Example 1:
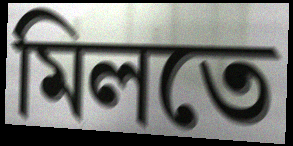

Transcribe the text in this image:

মিলতে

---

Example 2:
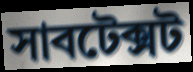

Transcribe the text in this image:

সাবটেক্সট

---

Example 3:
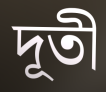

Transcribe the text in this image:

দূতী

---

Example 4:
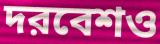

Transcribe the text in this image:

দরবেশও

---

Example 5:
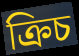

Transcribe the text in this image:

ক্রিচ